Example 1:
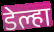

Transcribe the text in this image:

डेल्हा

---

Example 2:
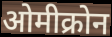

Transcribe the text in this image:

ओमीक्रोन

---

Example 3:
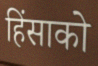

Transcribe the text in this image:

हिंसाको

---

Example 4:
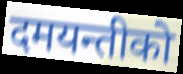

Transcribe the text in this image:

दमयन्तीको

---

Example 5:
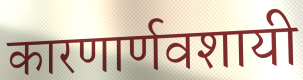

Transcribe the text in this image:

कारणार्णवशायी